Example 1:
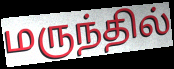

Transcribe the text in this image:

மருந்தில்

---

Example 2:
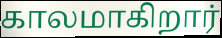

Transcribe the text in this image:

காலமாகிறார்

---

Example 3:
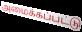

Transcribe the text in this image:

அமைக்கப்பட்டு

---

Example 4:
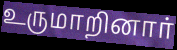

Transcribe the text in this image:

உருமாறினார்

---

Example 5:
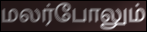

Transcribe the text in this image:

மலர்போலும்